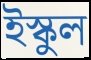
ইস্কুল